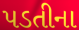
પડતીના